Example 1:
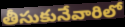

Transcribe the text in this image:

తీసుకునేవారిలో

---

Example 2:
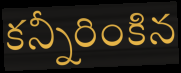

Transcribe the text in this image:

కన్నీరింకిన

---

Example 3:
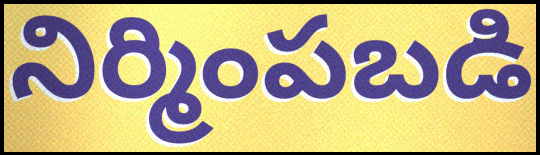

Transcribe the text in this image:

నిర్మింపబడి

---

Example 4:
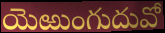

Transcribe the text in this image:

యెఱుంగుదువో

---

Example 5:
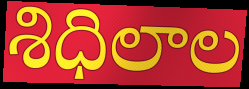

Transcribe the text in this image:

శిధిలాల